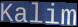
Kalim